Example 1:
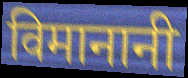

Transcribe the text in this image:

विमानानी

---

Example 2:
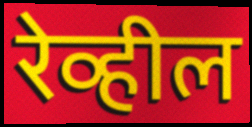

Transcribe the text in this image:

रेव्हील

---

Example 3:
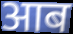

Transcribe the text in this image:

आब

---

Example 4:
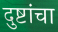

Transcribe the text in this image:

दुष्टांचा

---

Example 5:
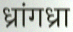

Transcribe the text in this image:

ध्रांगध्रा